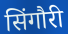
सिंगौरी